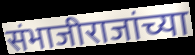
संभाजीराजांच्या